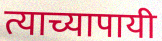
त्याच्यापायी